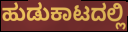
ಹುಡುಕಾಟದಲ್ಲಿ